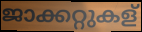
ജാക്കറ്റുകള്